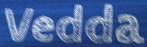
Vedda